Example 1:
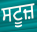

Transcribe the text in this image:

ਸਟੂਜ਼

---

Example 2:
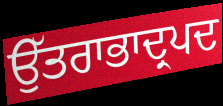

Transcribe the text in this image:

ਉੱਤਰਾਭਾਦ੍ਰਪਦ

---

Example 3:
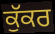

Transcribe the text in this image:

ਕੁੱਕਰ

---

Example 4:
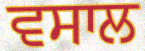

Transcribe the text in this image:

ਵਸਾਲ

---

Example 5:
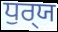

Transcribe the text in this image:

ਧੁਰ੍‍ਯ